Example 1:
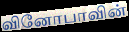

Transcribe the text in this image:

வினோபாவின்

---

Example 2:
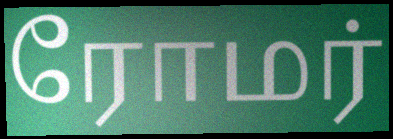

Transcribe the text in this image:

ரோமர்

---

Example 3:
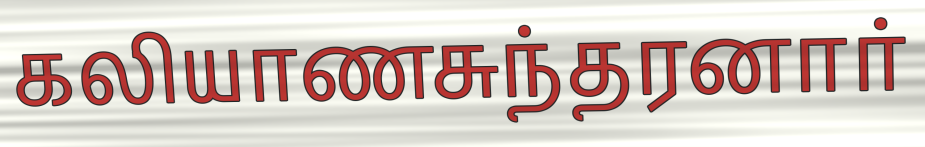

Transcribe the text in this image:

கலியாணசுந்தரனார்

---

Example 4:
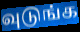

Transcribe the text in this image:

வுடுங்க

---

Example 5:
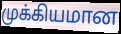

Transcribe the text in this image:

முக்கியமான